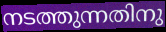
നടത്തുന്നതിനു